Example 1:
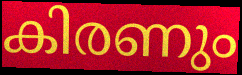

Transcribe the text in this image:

കിരണും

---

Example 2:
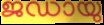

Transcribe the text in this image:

ജഡായു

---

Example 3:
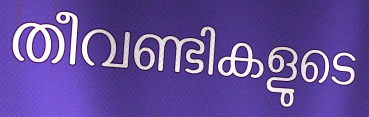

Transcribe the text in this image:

തീവണ്ടികളുടെ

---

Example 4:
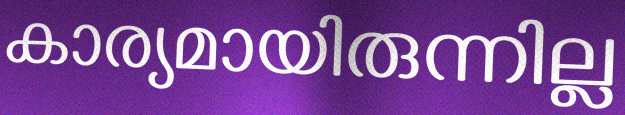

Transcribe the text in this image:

കാര്യമായിരുന്നില്ല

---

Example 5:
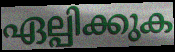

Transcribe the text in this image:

ഏല്പിക്കുക